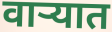
वाऱ्यात